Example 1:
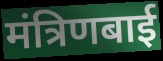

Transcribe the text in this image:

मंत्रिणबाई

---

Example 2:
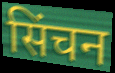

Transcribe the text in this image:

सिंचन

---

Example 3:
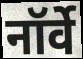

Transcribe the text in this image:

नॉर्वे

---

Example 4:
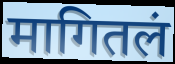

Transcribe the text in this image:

मागितलं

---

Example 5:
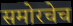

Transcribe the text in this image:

समोरचेच